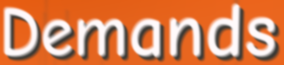
Demands